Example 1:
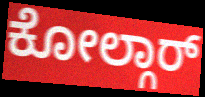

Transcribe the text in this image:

ಕೋಲ್ಗಾರ್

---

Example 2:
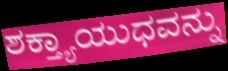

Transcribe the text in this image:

ಶಕ್ತ್ಯಾಯುಧವನ್ನು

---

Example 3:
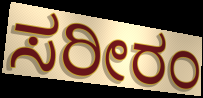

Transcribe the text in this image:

ಸರೀರಂ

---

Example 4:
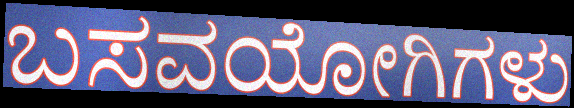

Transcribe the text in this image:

ಬಸವಯೋಗಿಗಳು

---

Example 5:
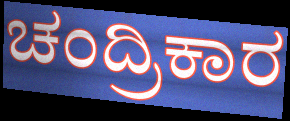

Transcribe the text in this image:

ಚಂದ್ರಿಕಾರ